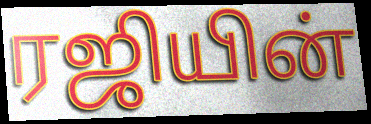
ரஜியின்